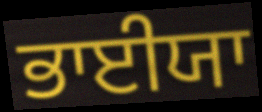
ਭਾਈਯਾ